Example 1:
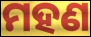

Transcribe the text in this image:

ମହଣ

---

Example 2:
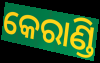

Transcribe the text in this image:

କେରାଣ୍ଡି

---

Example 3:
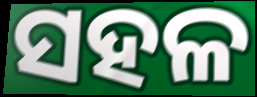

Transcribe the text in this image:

ସହଳ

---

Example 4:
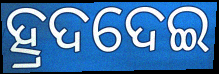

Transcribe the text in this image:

ହ୍ରଦଦେଇ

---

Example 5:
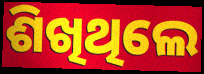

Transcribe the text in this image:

ଶିଖିଥିଲେ